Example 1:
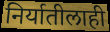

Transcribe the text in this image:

निर्यातीलाही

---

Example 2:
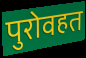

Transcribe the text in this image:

पुरोवहत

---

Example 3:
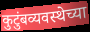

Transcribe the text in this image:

कुटुंबव्यवस्थेच्या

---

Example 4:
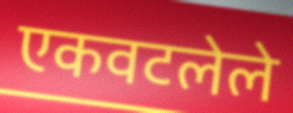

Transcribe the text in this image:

एकवटलेले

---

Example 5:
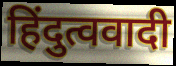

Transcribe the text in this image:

हिंदुत्ववादी